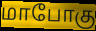
மாபோகு